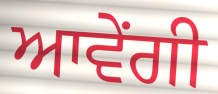
ਆਵੇਂਗੀ